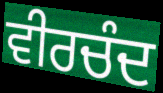
ਵੀਰਚੰਦ